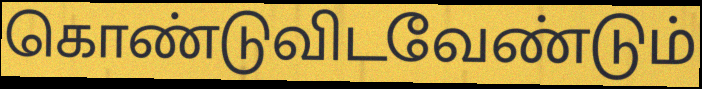
கொண்டுவிடவேண்டும்